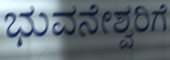
ಭುವನೇಶ್ವರಿಗೆ